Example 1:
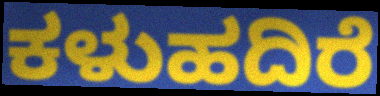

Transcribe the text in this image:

ಕಳುಹದಿರೆ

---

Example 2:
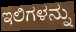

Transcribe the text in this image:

ಇಲಿಗಳನ್ನು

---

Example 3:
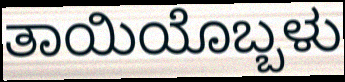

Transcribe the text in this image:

ತಾಯಿಯೊಬ್ಬಳು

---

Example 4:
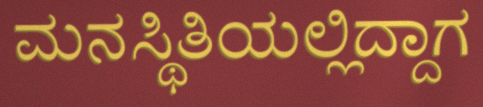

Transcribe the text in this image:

ಮನಸ್ಥಿತಿಯಲ್ಲಿದ್ದಾಗ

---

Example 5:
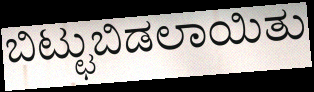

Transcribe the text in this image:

ಬಿಟ್ಟುಬಿಡಲಾಯಿತು